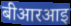
बीआरआइ